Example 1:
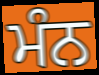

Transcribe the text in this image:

ਮੰਨ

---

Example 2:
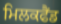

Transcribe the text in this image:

ਮਿਲਕਫੈਂਡ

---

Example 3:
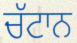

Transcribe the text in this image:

ਚੱਟਾਨ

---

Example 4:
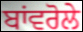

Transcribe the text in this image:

ਬਾਂਵਰੋਲੇ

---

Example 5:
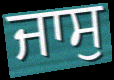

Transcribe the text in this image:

ਜਾਸੁ